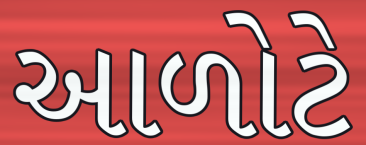
આળોટે